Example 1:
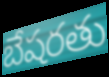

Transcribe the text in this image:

బేషరతు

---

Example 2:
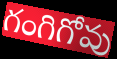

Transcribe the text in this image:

గంగిగోవు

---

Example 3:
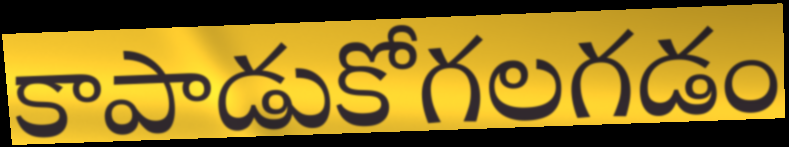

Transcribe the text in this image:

కాపాడుకోగలగడం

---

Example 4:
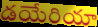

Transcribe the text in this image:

డయేరియా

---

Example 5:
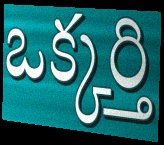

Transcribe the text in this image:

ఒక్కర్తి